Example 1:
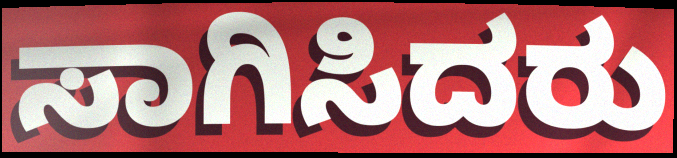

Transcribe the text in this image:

ಸಾಗಿಸಿದರು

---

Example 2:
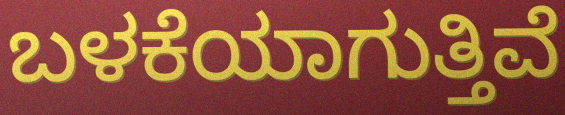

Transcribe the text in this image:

ಬಳಕೆಯಾಗುತ್ತಿವೆ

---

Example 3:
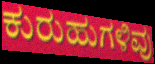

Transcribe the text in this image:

ಕುರುಹುಗಳಿವು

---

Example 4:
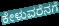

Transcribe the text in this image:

ಕೇಳುವರೆನಗೆ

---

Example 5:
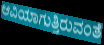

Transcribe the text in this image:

ಆವಿಯಾಗುತ್ತಿರುವಂತೆ